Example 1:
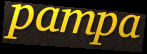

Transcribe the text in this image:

pampa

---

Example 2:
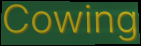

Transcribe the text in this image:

Cowing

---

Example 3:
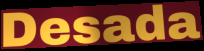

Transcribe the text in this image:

Desada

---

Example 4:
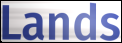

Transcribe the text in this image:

Lands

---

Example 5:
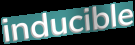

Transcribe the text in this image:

inducible